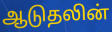
ஆடுதலின்